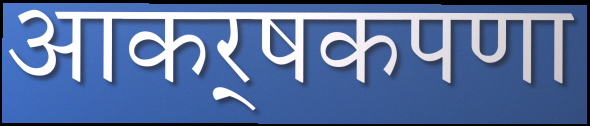
आकर्षकपणा